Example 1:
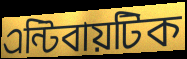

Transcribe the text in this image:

এন্টিবায়টিক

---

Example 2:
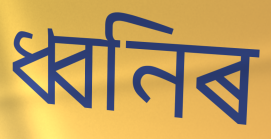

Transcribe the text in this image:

ধ্বনিৰ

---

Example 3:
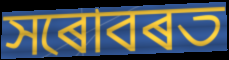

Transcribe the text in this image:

সৰোবৰত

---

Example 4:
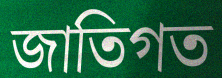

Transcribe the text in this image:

জাতিগত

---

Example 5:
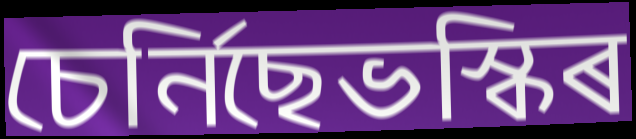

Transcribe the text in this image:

চেৰ্নিছেভস্কিৰ